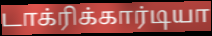
டாக்ரிக்கார்டியா